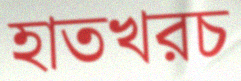
হাতখরচ